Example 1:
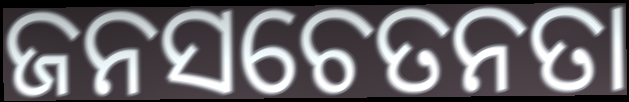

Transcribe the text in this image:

ଜନସଚେତନତା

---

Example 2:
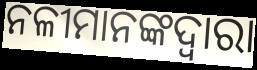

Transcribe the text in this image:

ନଳୀମାନଙ୍କଦ୍ୱାରା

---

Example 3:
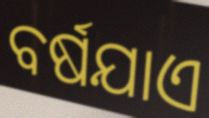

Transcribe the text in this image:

ବର୍ଷଯାଏ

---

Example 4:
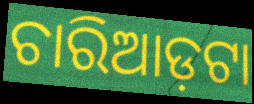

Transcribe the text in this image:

ଚାରିଆଡ଼ଟା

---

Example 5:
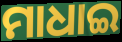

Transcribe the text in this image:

ମାଧାଇ